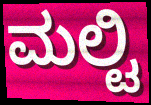
ಮಲ್ಟಿ